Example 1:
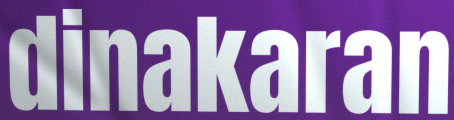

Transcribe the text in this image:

dinakaran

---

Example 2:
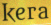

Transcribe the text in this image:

kera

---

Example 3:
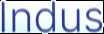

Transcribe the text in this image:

Indus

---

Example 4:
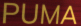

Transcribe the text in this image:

PUMA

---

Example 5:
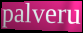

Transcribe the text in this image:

palveru